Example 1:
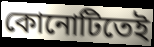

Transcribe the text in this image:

কোনোটিতেই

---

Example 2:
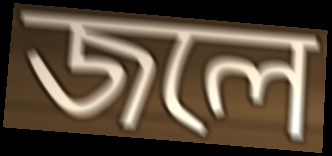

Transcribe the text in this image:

জলে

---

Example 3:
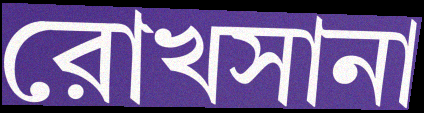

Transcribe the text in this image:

রোখসানা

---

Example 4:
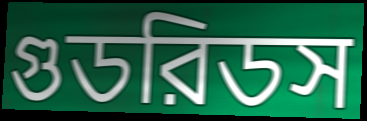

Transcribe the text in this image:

গুডরিডস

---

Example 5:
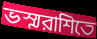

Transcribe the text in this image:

ভস্মরাশিতে